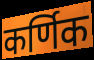
कर्णिक